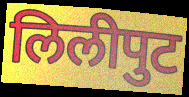
लिलीपुट